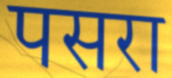
पसरा